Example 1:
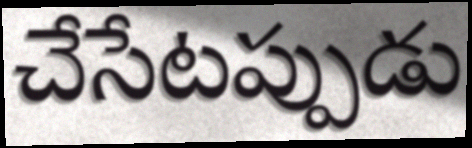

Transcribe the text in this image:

చేసేటప్పుడు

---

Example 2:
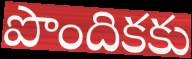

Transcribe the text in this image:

పొందికకు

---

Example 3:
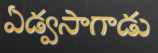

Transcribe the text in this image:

ఏడ్వసాగాడు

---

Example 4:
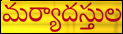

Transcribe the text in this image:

మర్యాదస్తుల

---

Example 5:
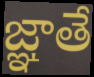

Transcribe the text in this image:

జ్ఞాతే